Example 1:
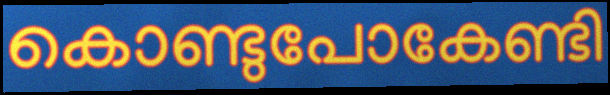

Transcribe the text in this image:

കൊണ്ടുപോകേണ്ടി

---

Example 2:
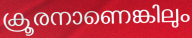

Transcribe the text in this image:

ക്രൂരനാണെങ്കിലും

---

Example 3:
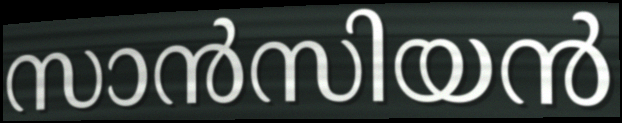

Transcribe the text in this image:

സാൻസിയൻ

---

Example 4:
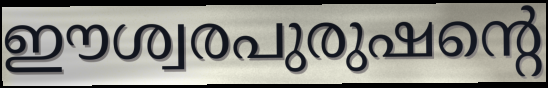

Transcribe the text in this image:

ഈശ്വരപുരുഷന്റെ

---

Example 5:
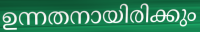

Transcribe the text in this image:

ഉന്നതനായിരിക്കും